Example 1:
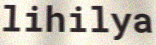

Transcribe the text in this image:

lihilya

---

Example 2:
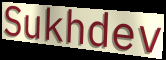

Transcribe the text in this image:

Sukhdev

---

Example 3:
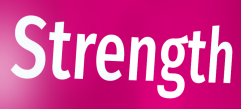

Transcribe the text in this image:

Strength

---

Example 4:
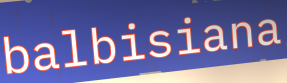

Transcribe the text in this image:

balbisiana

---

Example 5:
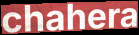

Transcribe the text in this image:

chahera